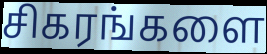
சிகரங்களை